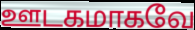
ஊடகமாகவே